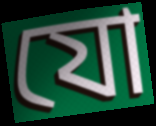
যো